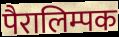
पैरालिम्पक